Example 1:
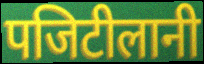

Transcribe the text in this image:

पजिटीलानी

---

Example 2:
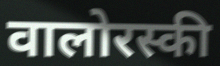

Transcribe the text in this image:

वालोरस्की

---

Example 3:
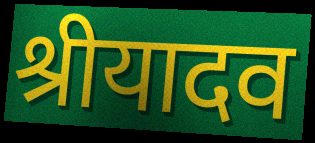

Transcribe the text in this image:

श्रीयादव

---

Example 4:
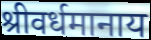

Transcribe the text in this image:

श्रीवर्धमानाय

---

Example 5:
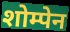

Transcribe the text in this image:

शोम्पेन